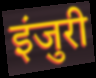
इंजुरी